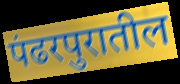
पंढरपुरातील